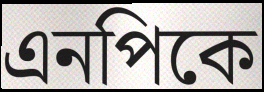
এনপিকে